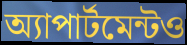
অ্যাপার্টমেন্টও